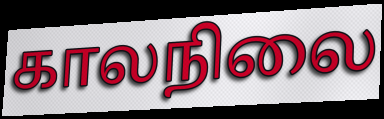
காலநிலை